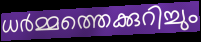
ധർമ്മത്തെക്കുറിച്ചും